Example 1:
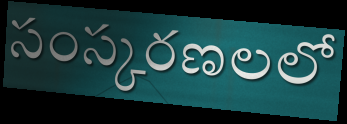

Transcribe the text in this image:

సంస్కరణలలో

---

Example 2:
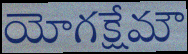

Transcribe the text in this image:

యోగక్షేమౌ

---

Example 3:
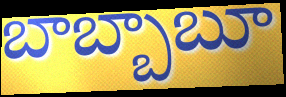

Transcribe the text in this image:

బాబ్బాబూ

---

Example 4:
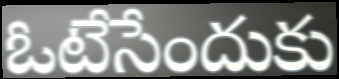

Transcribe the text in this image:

ఓటేసేందుకు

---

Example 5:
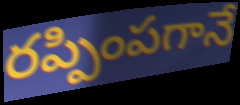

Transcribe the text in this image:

రప్పింపగానే